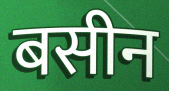
बसीन